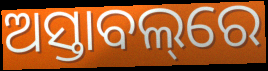
ଅସ୍ତାବଲ୍‌ରେ